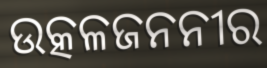
ଉତ୍କଳଜନନୀର